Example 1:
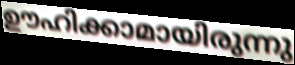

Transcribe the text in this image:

ഊഹിക്കാമായിരുന്നു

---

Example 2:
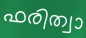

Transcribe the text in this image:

ഫരിത്വാ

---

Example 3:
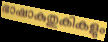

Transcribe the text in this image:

ഭാഷാകുതുകികളും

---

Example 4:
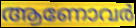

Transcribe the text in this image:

ആണോവർ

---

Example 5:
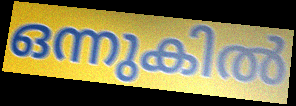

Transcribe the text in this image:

ഒന്നുകിൽ